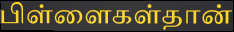
பிள்ளைகள்தான்